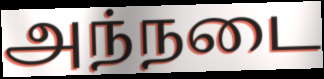
அந்நடை